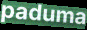
paduma